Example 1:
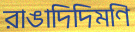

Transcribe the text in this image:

রাঙাদিদিমণি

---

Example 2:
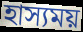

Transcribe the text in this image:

হাস্যময়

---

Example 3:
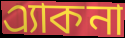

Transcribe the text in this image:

এ্যাকনা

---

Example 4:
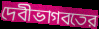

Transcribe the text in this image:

দেবীভাগবতের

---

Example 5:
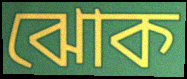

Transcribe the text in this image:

ঝোক